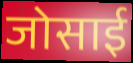
जोसाई